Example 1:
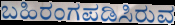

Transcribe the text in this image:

ಬಹಿರಂಗಪಡಿಸಿರುವ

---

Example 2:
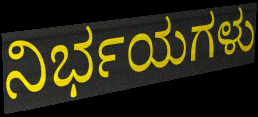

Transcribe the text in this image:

ನಿರ್ಭಯಗಳು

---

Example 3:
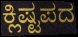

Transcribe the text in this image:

ಕ್ಲಿಷ್ಟಪದ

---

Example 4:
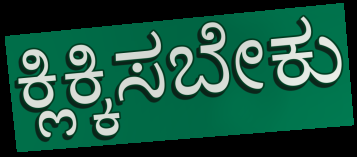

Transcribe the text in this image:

ಕ್ಲಿಕ್ಕಿಸಬೇಕು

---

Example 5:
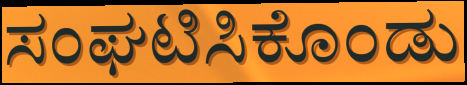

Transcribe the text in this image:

ಸಂಘಟಿಸಿಕೊಂಡು